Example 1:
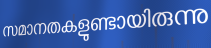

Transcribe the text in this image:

സമാനതകളുണ്ടായിരുന്നു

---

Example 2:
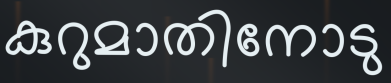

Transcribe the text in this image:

കുറുമാതിനോടു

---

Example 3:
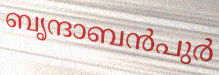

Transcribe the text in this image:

ബൃന്ദാബൻപുർ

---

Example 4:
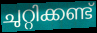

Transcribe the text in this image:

ചുറ്റിക്കണ്ട്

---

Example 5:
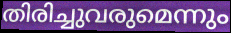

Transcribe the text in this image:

തിരിച്ചുവരുമെന്നും